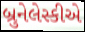
બ્રુનેલેસ્કીએ